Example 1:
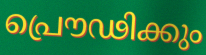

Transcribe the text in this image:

പ്രൌഢിക്കും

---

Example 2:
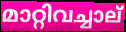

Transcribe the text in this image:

മാറ്റിവച്ചാല്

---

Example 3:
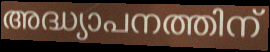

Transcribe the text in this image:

അദ്ധ്യാപനത്തിന്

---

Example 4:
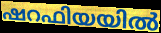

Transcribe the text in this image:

ഷറഫിയയിൽ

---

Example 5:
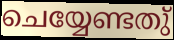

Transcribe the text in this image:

ചെയ്യേണ്ടതു്